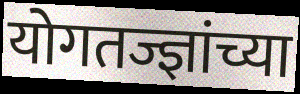
योगतज्ज्ञांच्या